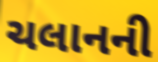
ચલાનની